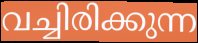
വച്ചിരിക്കുന്ന